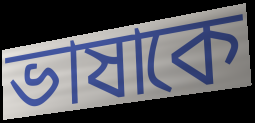
ভাষাকে